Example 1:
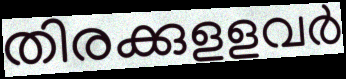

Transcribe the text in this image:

തിരക്കുളളവർ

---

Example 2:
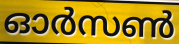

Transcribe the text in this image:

ഓർസൺ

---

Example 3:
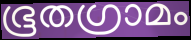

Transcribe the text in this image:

ഭൂതഗ്രാമം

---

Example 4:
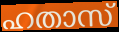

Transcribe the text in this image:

ഹതാസ്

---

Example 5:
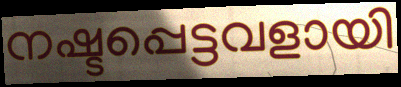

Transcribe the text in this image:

നഷ്ടപ്പെട്ടവളായി